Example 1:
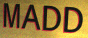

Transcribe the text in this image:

MADD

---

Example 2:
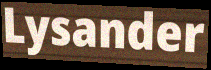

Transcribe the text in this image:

Lysander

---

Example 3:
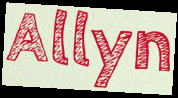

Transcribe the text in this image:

Allyn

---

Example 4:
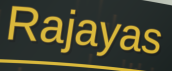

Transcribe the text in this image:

Rajayas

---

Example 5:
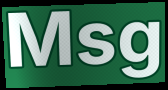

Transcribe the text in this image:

Msg